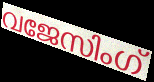
വജേസിംഗ്